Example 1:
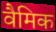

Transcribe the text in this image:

वैमिक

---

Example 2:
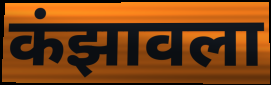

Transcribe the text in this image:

कंझावला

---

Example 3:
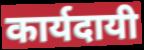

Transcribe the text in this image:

कार्यदायी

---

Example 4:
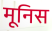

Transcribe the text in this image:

मूनिस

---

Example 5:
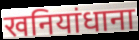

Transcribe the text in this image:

खनियांधाना